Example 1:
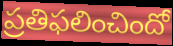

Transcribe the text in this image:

ప్రతిఫలించిందో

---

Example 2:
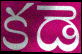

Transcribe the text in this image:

కడె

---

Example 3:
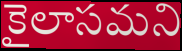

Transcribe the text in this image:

కైలాసమని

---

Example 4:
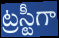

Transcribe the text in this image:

ట్రస్టీగా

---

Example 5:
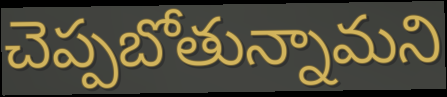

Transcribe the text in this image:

చెప్పబోతున్నామని